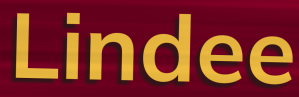
Lindee